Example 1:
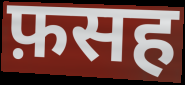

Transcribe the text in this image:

फ़सह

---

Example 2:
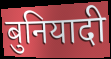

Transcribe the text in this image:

बुनियादी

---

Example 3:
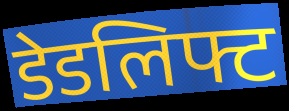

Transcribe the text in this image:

डेडलिफ्ट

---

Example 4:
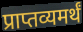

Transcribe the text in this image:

प्राप्तव्यमर्थं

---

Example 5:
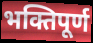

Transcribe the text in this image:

भक्तिपूर्ण